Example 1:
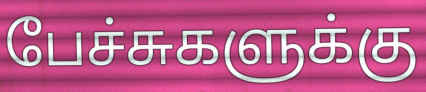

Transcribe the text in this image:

பேச்சுகளுக்கு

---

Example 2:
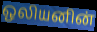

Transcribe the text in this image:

ஒலியனின்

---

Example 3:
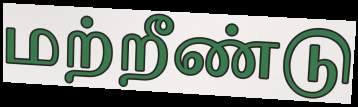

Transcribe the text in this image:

மற்றீண்டு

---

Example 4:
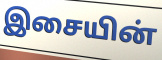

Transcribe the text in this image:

இசையின்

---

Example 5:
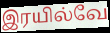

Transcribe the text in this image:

இரயில்வே